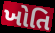
ખોતિ